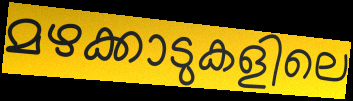
മഴക്കാടുകളിലെ